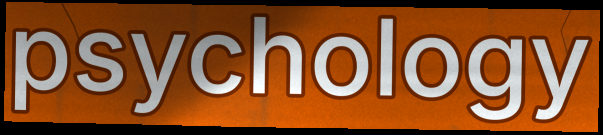
psychology